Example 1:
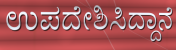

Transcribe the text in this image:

ಉಪದೇಶಿಸಿದ್ದಾನೆ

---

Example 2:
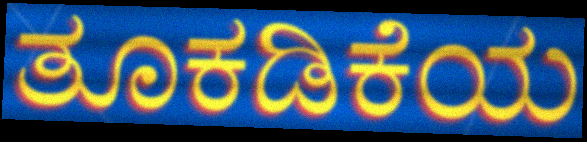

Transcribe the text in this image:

ತೂಕಡಿಕೆಯ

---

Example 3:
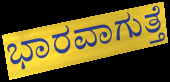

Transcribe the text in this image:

ಭಾರವಾಗುತ್ತೆ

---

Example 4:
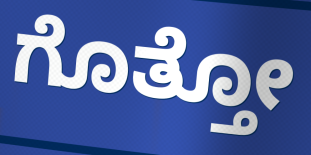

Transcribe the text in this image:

ಗೊತ್ತೋ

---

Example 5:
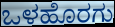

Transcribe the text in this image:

ಒಳಹೊರಗು